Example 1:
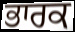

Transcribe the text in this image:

ਭਾਰਕ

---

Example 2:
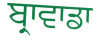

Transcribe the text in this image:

ਬ੍ਰਾਵਾਡਾ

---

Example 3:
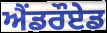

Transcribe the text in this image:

ਐਂਡਰੌਏਡ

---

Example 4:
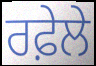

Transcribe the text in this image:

ਰਫ਼ੇਲੇ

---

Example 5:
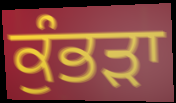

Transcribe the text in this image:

ਕੁੰਭੜਾ